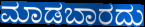
ಮಾಡಬಾರದು